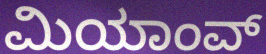
ಮಿಯಾಂವ್